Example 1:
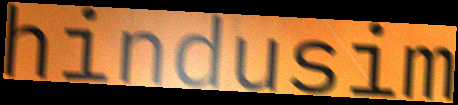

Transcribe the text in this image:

hindusim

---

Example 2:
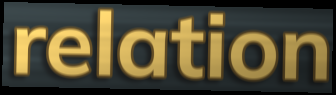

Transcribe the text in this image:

relation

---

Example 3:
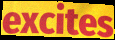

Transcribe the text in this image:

excites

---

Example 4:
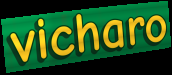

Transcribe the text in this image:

vicharo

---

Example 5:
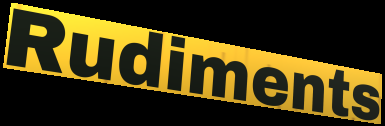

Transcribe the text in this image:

Rudiments